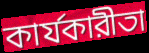
কার্যকারীতা